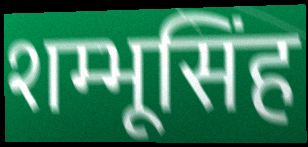
शम्भूसिंह